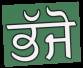
ਭੱਜੋ